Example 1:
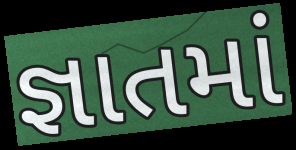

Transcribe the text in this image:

જ્ઞાતમાં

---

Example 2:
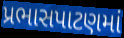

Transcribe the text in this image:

પ્રભાસપાટણમાં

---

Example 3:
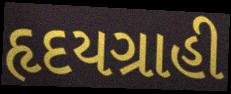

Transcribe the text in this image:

હૃદયગ્રાહી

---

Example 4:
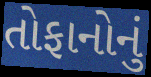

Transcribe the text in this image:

તોફાનોનું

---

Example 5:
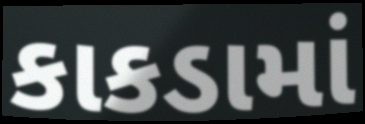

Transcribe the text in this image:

કાકડામાં